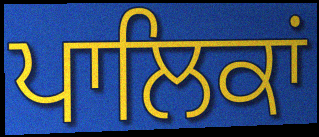
ਪਾਲਿਕਾਂ